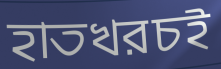
হাতখরচই